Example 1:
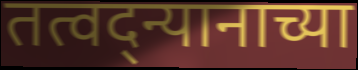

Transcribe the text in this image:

तत्वद्न्यानाच्या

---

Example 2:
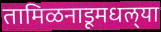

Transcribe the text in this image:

तामिळनाडूमधल्या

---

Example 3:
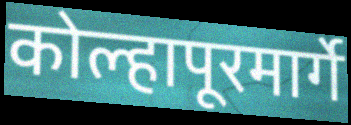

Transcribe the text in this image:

कोल्हापूरमार्गे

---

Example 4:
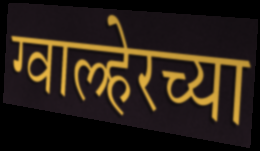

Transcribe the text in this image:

ग्वाल्हेरच्या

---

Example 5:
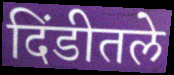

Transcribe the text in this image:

दिंडीतले